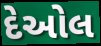
દેઓલ